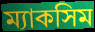
ম্যাকসিম